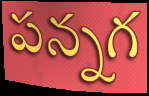
పన్నగ